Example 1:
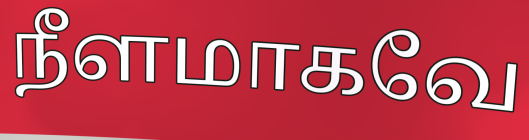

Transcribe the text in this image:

நீளமாகவே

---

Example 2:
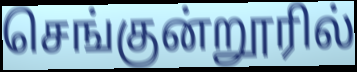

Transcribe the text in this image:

செங்குன்றூரில்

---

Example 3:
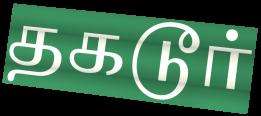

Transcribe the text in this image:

தகடூர்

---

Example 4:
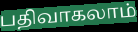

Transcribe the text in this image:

பதிவாகலாம்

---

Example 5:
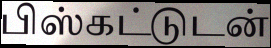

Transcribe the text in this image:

பிஸ்கட்டுடன்